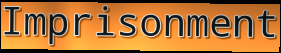
Imprisonment